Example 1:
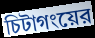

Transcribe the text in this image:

চিটাগংয়ের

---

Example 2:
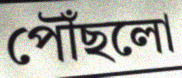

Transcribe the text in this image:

পৌঁছলো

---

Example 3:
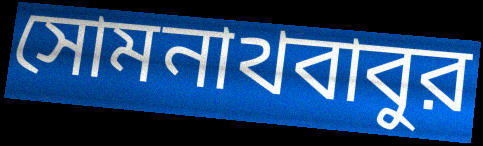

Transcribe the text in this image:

সোমনাথবাবুর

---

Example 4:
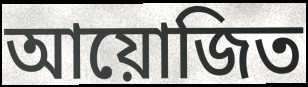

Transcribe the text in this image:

আয়োজিত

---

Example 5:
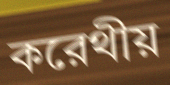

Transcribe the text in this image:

করেথীয়